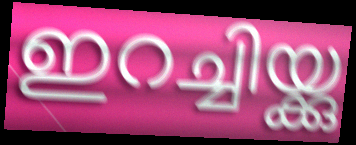
ഇറച്ചിയ്ക്കു